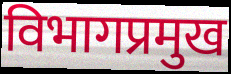
विभागप्रमुख